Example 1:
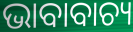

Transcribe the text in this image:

ଭାବାବାଚ୍ୟ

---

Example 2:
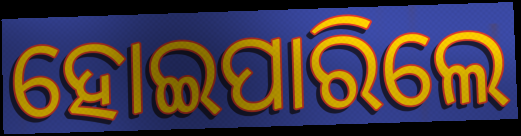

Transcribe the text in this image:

ହୋଇପାରିଲେ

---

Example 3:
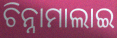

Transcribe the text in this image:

ଚିନ୍ନାମାଲାଇ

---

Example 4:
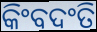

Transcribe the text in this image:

କିଂବଦଂତି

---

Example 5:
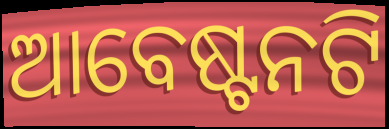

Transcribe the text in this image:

ଆବେଷ୍ଟନଟି